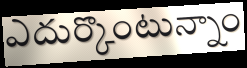
ఎదుర్కొంటున్నాం